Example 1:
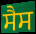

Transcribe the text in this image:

ਸੈਸ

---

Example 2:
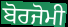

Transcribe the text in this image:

ਬੋਰਜੋਮੀ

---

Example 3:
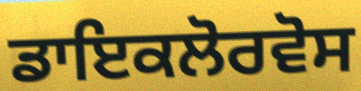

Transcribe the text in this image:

ਡਾਇਕਲੋਰਵੋਸ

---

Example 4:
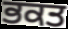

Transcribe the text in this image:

ਭਕਤ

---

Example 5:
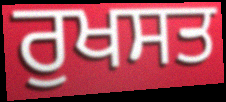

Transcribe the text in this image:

ਰੁਖਸਤ